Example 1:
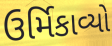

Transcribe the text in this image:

ઉર્મિકાવ્યો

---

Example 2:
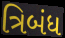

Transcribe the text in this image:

ત્રિબંધ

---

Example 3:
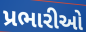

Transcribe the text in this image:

પ્રભારીઓ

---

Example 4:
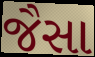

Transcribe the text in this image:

જૈસા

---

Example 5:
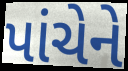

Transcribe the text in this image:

પાંચેને